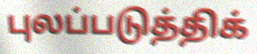
புலப்படுத்திக்